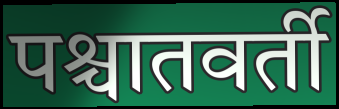
पश्चातवर्ती